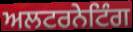
ਅਲਟਰਨੇਟਿੰਗ